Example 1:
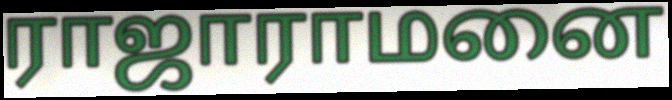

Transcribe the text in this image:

ராஜாராமனை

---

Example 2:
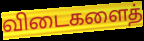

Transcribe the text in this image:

விடைகளைத்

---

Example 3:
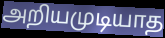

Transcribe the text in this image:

அறியமுடியாத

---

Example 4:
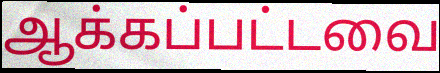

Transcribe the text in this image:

ஆக்கப்பட்டவை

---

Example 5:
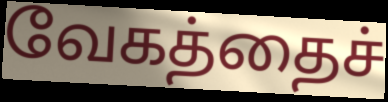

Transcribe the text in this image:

வேகத்தைச்